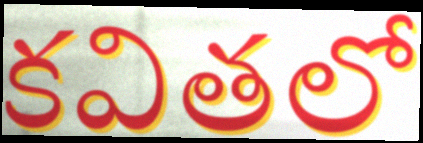
కవితలో